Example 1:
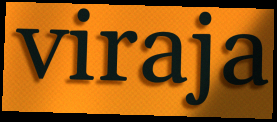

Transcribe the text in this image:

viraja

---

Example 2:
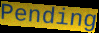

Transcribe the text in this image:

Pending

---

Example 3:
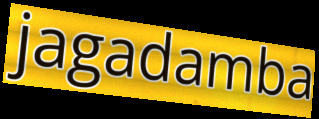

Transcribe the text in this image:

jagadamba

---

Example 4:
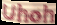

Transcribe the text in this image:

Uhoh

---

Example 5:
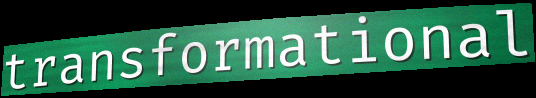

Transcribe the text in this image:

transformational